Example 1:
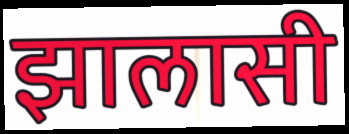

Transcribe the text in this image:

झालासी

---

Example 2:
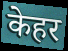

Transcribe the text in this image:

केहर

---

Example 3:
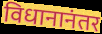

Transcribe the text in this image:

विधानानंतर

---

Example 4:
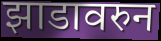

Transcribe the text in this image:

झाडावरुन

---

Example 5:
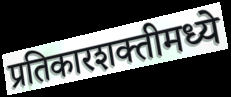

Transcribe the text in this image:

प्रतिकारशक्तीमध्ये